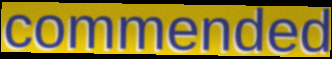
commended